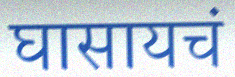
घासायचं